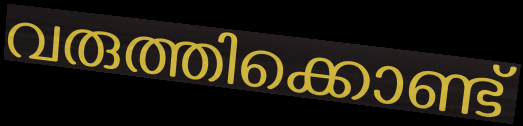
വരുത്തിക്കൊണ്ട്